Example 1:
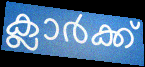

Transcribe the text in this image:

ക്ലാർക്ക്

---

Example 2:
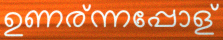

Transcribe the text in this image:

ഉണര്ന്നപ്പോള്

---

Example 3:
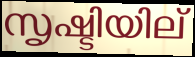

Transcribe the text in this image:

സൃഷ്ടിയില്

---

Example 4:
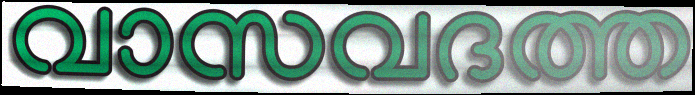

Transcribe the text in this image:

വാസവദത്ത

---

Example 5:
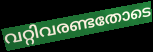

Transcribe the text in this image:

വറ്റിവരണ്ടതോടെ